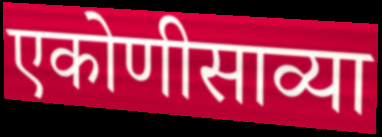
एकोणीसाव्या